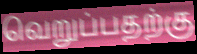
வெறுப்பதற்கு